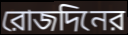
রোজদিনের